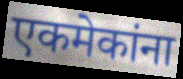
एकमेकांना